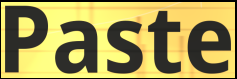
Paste